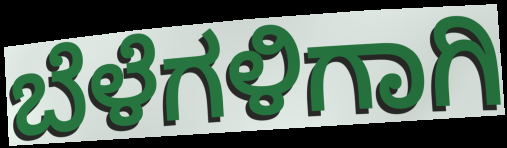
ಬೆಳೆಗಳಿಗಾಗಿ